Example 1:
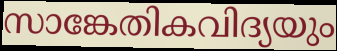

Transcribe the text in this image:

സാങ്കേതികവിദ്യയും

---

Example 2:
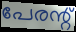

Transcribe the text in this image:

പേരന്റ്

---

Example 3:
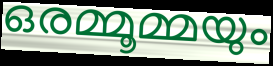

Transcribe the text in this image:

ഒരമ്മൂമ്മയും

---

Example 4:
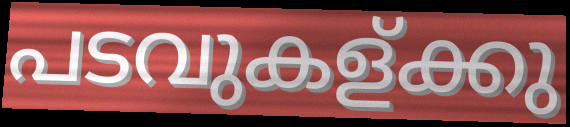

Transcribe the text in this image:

പടവുകള്ക്കു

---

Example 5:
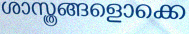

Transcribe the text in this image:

ശാസ്ത്രങ്ങളൊക്കെ